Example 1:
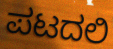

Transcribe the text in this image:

ಪಟದಲಿ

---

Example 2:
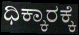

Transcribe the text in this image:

ಧಿಕ್ಕಾರಕ್ಕೆ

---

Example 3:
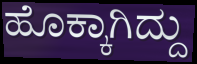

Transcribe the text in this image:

ಹೊಕ್ಕಾಗಿದ್ದು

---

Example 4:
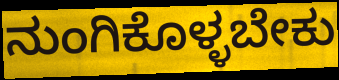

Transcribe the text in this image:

ನುಂಗಿಕೊಳ್ಳಬೇಕು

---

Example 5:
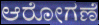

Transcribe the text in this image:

ಆರೋಗಣೆ